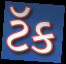
ટૅક